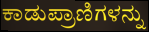
ಕಾಡುಪ್ರಾಣಿಗಳನ್ನು